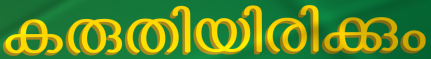
കരുതിയിരിക്കും